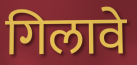
गिलावे